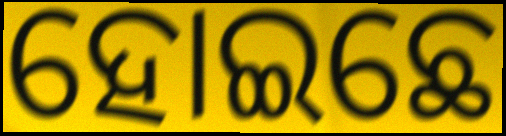
ହୋଇଛେ